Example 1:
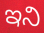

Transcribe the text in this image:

ఇని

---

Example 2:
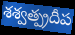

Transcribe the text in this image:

శశ్వత్ప్రదీప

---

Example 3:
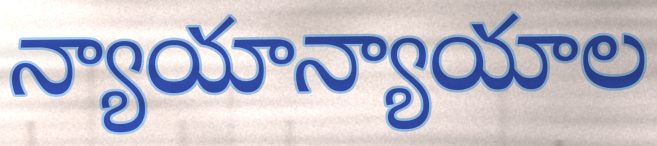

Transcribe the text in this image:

న్యాయాన్యాయాల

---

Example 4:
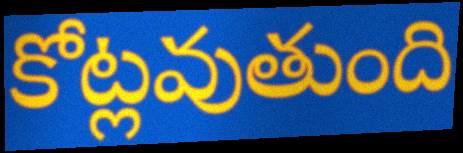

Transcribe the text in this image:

కోట్లవుతుంది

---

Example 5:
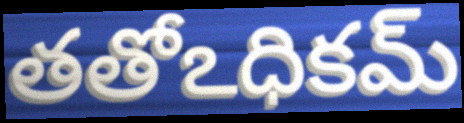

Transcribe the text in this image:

తతోఽధికమ్